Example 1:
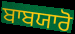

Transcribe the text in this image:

ਬਾਬਯਾਰੋ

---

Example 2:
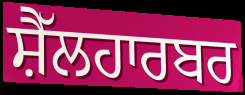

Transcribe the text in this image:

ਸ਼ੈੱਲਹਾਰਬਰ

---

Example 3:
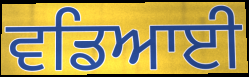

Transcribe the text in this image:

ਵਡਿਆਈ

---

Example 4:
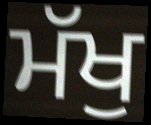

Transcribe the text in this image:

ਮੱਖੁ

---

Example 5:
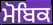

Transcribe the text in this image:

ਮੋਬਿਕ